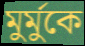
মুর্মুকে